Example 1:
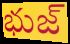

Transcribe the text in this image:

భుజ్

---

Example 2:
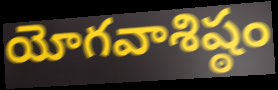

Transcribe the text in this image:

యోగవాశిష్ఠం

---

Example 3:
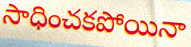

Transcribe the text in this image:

సాధించకపోయినా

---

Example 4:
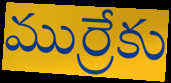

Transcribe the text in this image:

ముర్రేకు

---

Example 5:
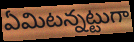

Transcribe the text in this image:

ఏమిటన్నట్టుగా